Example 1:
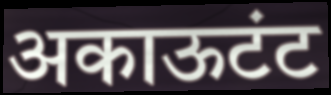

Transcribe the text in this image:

अकाऊटंट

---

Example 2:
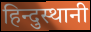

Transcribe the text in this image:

हिन्दुस्थानी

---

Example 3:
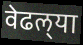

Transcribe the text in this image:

वेढल्या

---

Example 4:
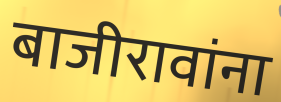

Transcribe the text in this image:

बाजीरावांना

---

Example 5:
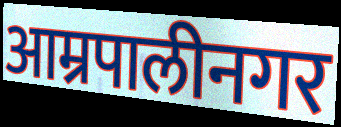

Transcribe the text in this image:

आम्रपालीनगर